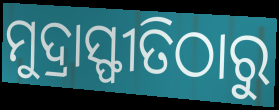
ମୁଦ୍ରାସ୍ଫୀତିଠାରୁ